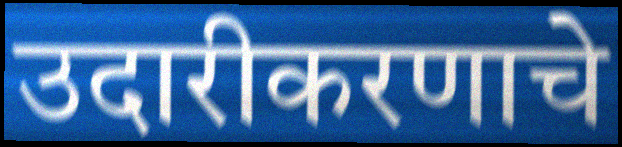
उदारीकरणाचे